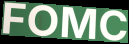
FOMC